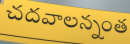
చదవాలన్నంత